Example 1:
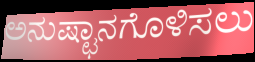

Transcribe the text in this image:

ಅನುಷ್ಟಾನಗೊಳಿಸಲು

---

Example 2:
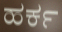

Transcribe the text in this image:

ಹರ್ಕ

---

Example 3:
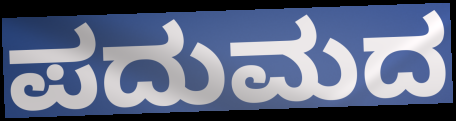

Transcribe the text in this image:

ಪದುಮದ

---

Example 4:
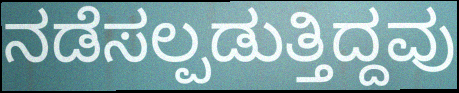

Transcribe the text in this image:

ನಡೆಸಲ್ಪಡುತ್ತಿದ್ದವು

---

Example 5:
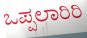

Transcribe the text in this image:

ಒಪ್ಪಲಾರಿರಿ